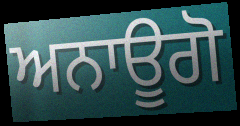
ਅਨਾਊਗੋ